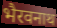
भैरवनाथ